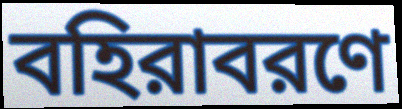
বহিরাবরণে